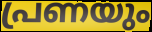
പ്രണയും